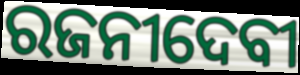
ରଜନୀଦେବୀ